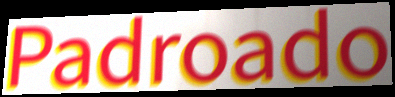
Padroado